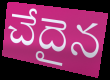
చేదైన